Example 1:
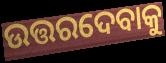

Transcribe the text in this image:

ଉତ୍ତରଦେବାକୁ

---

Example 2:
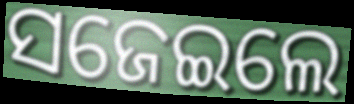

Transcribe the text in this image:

ସଜେଇଲେ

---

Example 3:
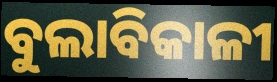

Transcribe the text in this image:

ବୁଲାବିକାଳୀ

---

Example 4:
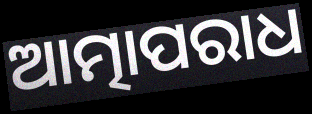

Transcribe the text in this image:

ଆତ୍ମାପରାଧ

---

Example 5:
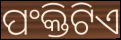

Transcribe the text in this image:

ପଂକ୍ତିଟିଏ